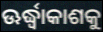
ଊର୍ଦ୍ଧ୍ୱାକାଶକୁ